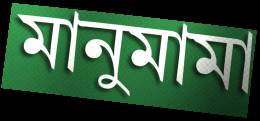
মানুমামা